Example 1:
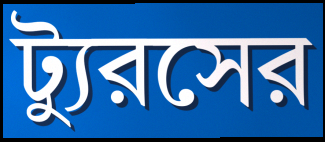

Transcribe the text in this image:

ট্যুরসের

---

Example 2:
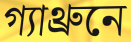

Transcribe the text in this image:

গ্যাথ্রুনে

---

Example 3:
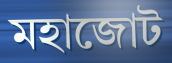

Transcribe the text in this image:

মহাজোট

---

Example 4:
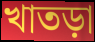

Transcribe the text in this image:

খাতড়া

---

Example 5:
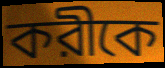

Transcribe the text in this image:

করীকে